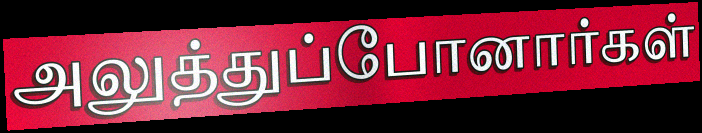
அலுத்துப்போனார்கள்